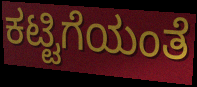
ಕಟ್ಟಿಗೆಯಂತೆ